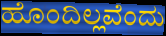
ಹೊಂದಿಲ್ಲವೆಂದು